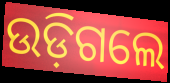
ଉଡ଼ିଗଲେ